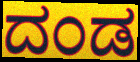
ದಂಡ